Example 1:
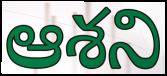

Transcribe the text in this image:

ఆశని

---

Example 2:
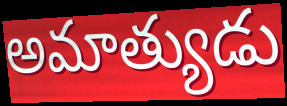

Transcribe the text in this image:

అమాత్యుడు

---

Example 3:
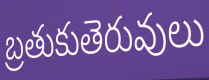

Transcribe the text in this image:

బ్రతుకుతెరువులు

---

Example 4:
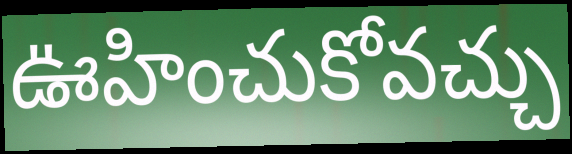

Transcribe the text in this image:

ఊహించుకోవచ్చు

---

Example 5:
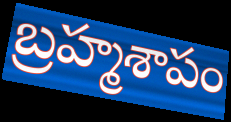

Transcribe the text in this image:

బ్రహ్మశాపం